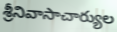
శ్రీనివాసాచార్యుల